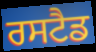
ਰਸਟੈਡ